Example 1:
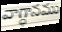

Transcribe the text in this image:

వాగ్ధానము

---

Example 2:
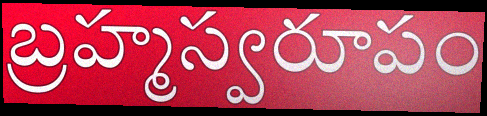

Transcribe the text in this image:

బ్రహ్మస్వరూపం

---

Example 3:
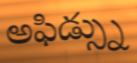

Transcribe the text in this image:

అఫిడ్స్ను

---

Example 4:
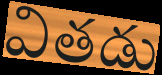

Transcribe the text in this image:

వితడు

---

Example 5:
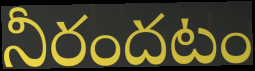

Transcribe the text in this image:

నీరందటం